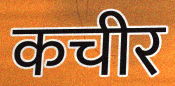
कचीर